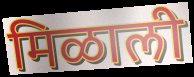
मिळाली